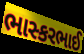
ભાસ્કરભાઈ